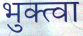
भुक्त्वा